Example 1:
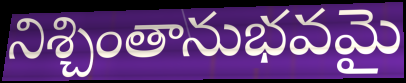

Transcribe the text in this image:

నిశ్చింతానుభవమై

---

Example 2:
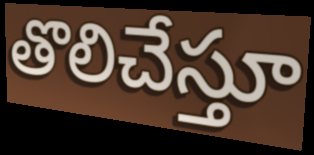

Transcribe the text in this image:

తొలిచేస్తూ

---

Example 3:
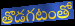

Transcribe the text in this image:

తొడగటంతో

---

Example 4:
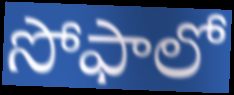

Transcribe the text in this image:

సోఫాలో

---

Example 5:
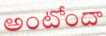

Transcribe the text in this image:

అంటోందా